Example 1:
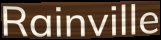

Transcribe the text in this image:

Rainville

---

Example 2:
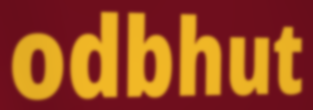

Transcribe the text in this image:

odbhut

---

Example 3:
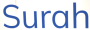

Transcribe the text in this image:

Surah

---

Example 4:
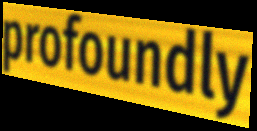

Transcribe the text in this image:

profoundly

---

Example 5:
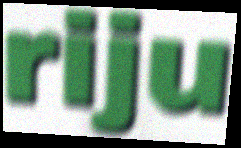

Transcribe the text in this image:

riju